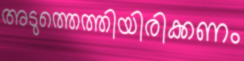
അടുത്തെത്തിയിരിക്കണം